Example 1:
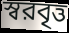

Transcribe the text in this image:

স্বরবৃত্ত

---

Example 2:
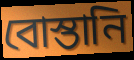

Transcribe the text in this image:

বোস্তানি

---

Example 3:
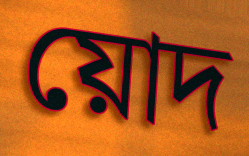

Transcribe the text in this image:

য়োদ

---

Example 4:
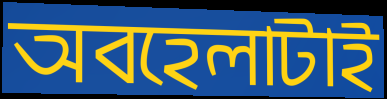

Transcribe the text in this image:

অবহেলাটাই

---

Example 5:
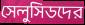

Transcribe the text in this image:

সেলুসিডদের